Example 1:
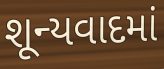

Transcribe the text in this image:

શૂન્યવાદમાં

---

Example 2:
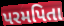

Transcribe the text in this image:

પરમપિતા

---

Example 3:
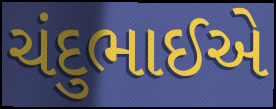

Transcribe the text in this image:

ચંદુભાઈએ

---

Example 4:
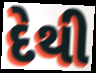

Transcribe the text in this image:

દેથી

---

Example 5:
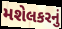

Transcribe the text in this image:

મશેલકરનું